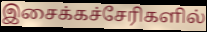
இசைக்கச்சேரிகளில்